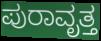
ಪುರಾವೃತ್ತ